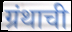
ग्रंथाची